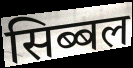
सिब्बल